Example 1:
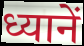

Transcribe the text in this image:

ध्यानें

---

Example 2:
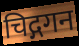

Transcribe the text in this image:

चिद्गगन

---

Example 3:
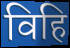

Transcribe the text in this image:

विहि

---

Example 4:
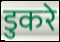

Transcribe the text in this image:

डुकरे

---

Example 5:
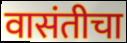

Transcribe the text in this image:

वासंतीचा